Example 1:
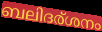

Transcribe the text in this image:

ബലിദര്ശനം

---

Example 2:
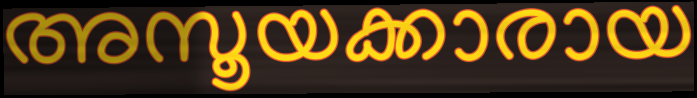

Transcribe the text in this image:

അസൂയക്കാരായ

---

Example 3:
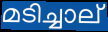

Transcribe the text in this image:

മടിച്ചാല്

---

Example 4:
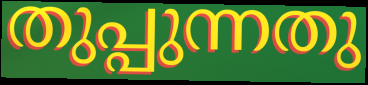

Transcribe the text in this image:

തുപ്പുന്നതു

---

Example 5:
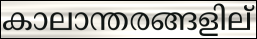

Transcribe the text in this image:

കാലാന്തരങ്ങളില്